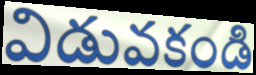
విడువకండి